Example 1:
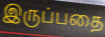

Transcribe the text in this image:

இருப்பதை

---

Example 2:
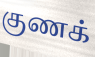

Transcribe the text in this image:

குணக்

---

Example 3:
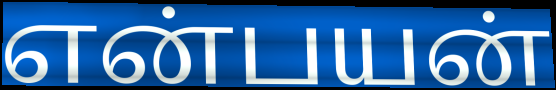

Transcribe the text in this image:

என்பயன்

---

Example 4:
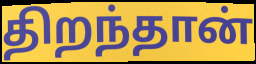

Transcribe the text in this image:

திறந்தான்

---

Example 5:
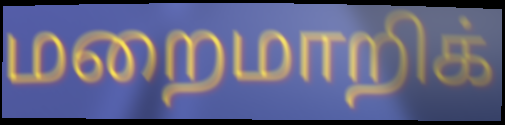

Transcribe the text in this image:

மறைமாறிக்